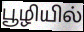
பூழியில்